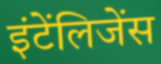
इंटेंलिजेंस